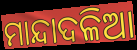
ମାନ୍ଦାଦଳିଆ